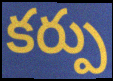
కర్పు